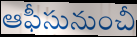
ఆఫీసునుంచీ